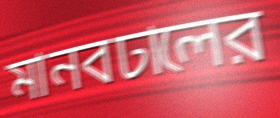
মানবঢালের